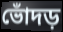
ভোঁদড়